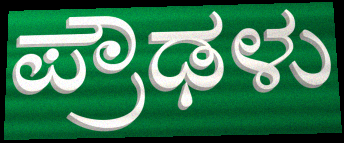
ಪ್ರೌಢಳು